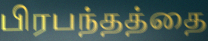
பிரபந்தத்தை